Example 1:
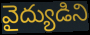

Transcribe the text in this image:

వైద్యుడిని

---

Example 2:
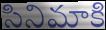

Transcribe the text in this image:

సినిమాకి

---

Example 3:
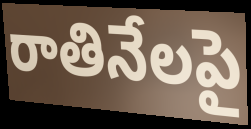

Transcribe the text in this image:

రాతినేలపై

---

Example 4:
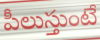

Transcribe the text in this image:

పీలుస్తుంటే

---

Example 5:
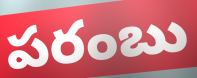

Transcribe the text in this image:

పరంబు